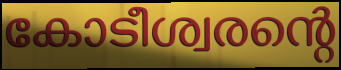
കോടീശ്വരന്റെ